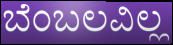
ಬೆಂಬಲವಿಲ್ಲ